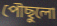
পৌছুলো